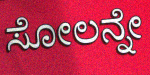
ಸೋಲನ್ನೇ